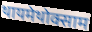
थायमेथोक्साम